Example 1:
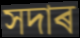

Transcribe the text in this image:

সদাৰ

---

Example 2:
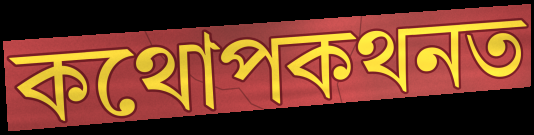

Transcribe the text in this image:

কথোপকথনত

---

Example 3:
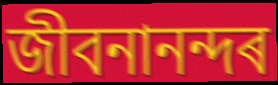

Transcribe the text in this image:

জীবনানন্দৰ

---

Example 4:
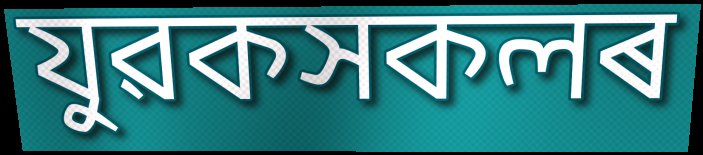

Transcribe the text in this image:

যুৱকসকলৰ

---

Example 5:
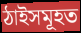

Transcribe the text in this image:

ঠাইসমূহত